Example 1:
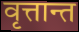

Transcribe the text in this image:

वृत्तान्त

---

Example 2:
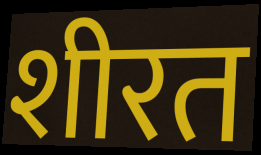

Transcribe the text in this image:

शीरत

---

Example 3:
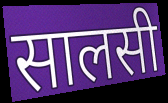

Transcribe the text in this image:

सालसी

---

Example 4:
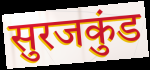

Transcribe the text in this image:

सुरजकुंड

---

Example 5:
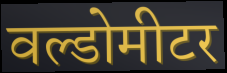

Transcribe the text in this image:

वल्डोमीटर